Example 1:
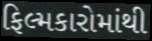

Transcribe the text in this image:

ફિલ્મકારોમાંથી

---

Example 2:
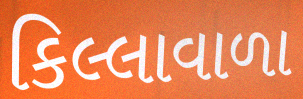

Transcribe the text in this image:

કિલ્લાવાળા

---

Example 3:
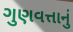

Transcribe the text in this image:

ગુણવત્તાનું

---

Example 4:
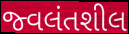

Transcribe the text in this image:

જ્વલંતશીલ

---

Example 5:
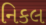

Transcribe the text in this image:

નિકલ